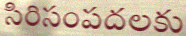
సిరిసంపదలకు